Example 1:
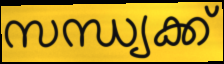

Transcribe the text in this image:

സന്ധ്യക്ക്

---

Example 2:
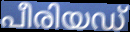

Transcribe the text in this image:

പീരിയഡ്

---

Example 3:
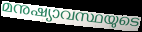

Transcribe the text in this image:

മനുഷ്യാവസ്ഥയുടെ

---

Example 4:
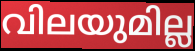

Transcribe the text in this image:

വിലയുമില്ല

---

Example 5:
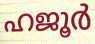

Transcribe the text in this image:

ഹജൂർ